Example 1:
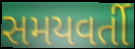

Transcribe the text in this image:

સમયવર્તી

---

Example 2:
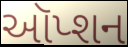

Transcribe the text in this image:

ઑપ્શન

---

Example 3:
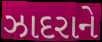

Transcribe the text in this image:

ઝાદરાને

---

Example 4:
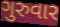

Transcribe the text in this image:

ગુરુવાર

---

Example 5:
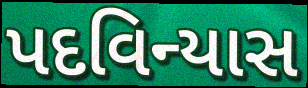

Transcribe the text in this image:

પદવિન્યાસ